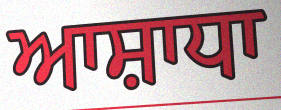
ਆਸ਼ਾਧਾ